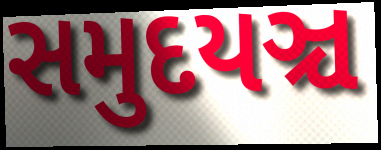
સમુદયઞ્ચ